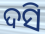
ଦସି